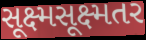
સૂક્ષ્મસૂક્ષ્મતર